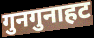
गुनगुनाहट